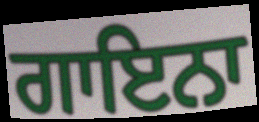
ਗਾਇਨਾ